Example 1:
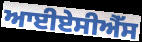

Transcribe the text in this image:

ਆਈਏਸੀਐੱਸ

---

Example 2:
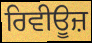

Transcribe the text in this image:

ਰਿਵੀਊਜ਼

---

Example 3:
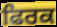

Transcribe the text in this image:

ਫਿਰਕ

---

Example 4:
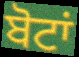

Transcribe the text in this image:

ਬੋਟਾਂ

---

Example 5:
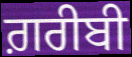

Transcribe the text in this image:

ਗ਼ਰੀਬੀ